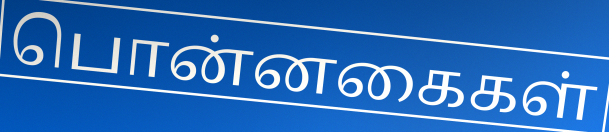
பொன்னகைகள்